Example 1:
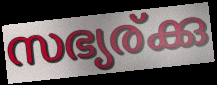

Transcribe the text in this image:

സഭ്യര്ക്കു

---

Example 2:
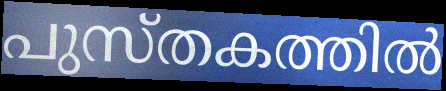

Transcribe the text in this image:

പുസ്തകത്തിൽ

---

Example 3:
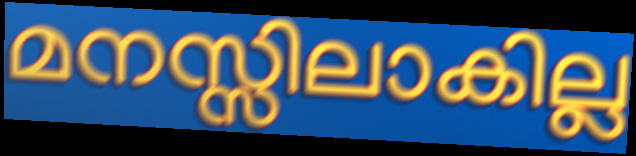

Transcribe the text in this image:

മനസ്സിലാകില്ല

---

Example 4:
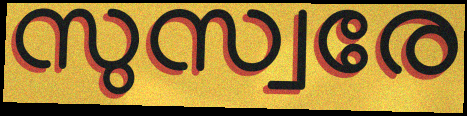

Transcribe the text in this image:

സുസ്വരേ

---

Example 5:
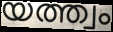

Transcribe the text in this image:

യത്ത്വം